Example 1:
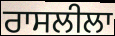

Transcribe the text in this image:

ਰਾਸਲੀਲਾ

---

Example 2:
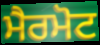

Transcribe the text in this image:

ਮੈਰਮੋਟ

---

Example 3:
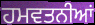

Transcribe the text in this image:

ਹਮਵਤਨੀਆਂ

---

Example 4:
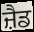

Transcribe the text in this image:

ਜ਼ੈਡ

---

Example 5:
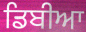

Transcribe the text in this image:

ਡਿਬੀਆ